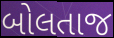
બોલતાજ